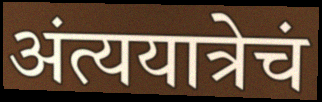
अंत्ययात्रेचं